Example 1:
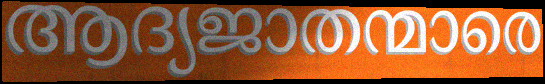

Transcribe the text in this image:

ആദ്യജാതന്മാരെ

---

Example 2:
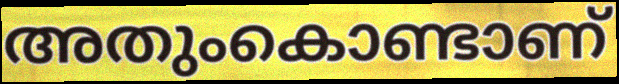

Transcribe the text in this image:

അതുംകൊണ്ടാണ്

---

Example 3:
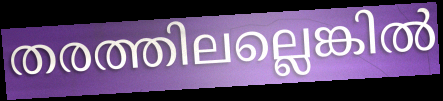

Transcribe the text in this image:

തരത്തിലല്ലെങ്കിൽ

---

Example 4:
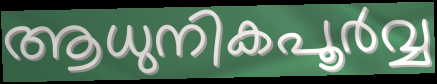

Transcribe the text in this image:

ആധുനികപൂർവ്വ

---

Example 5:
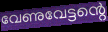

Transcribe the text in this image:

വേണുവേട്ടന്റെ